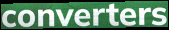
converters